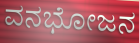
ವನಭೋಜನ